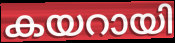
കയറായി